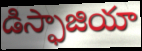
డిస్ఫాజియా